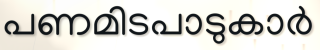
പണമിടപാടുകാർ